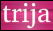
trija